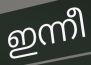
ഇന്നീ